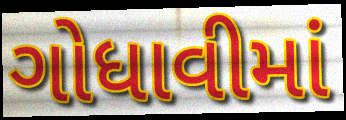
ગોધાવીમાં